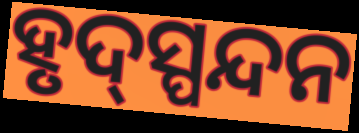
ହୃଦ୍‍ସ୍ପନ୍ଦନ